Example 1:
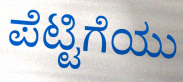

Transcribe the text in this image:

ಪೆಟ್ಟಿಗೆಯು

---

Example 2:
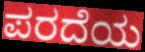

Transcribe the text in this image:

ಪರದೆಯ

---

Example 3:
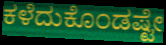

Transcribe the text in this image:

ಕಳೆದುಕೊಂಡಷ್ಟೇ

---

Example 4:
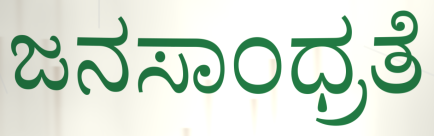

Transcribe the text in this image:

ಜನಸಾಂಧ್ರತೆ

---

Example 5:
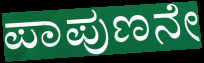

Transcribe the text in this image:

ಪಾಪುಣನೇ